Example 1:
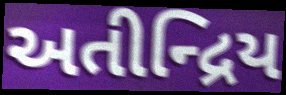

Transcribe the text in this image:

અતીન્દ્રિય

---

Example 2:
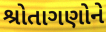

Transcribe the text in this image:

શ્રોતાગણોને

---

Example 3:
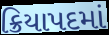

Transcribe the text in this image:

ક્રિયાપદમાં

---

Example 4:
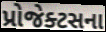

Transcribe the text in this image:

પ્રોજેક્ટસના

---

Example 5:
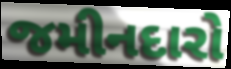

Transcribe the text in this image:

જમીનદારો